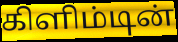
கிளிம்டின்